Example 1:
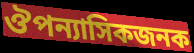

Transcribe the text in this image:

ঔপন্যাসিকজনক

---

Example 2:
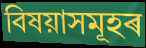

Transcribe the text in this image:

বিষয়াসমূহৰ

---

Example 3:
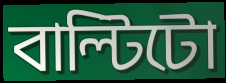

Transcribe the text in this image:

বাল্টিটো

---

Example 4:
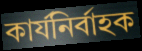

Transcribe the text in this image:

কাৰ্যনিৰ্বাহক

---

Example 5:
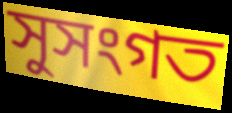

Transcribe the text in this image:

সুসংগত